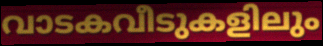
വാടകവീടുകളിലും